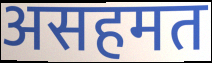
असहमत